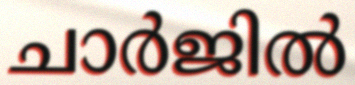
ചാർജിൽ